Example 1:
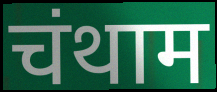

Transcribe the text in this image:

चंथाम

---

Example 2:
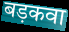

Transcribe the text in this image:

बड़कवा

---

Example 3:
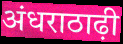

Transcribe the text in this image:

अंधराठाढ़ी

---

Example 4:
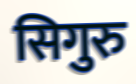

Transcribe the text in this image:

सिगुरु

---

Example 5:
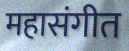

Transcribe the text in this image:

महासंगीत